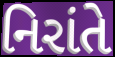
નિરાંતે